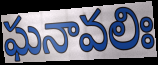
ఘనావలిః